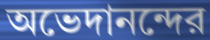
অভেদানন্দের